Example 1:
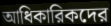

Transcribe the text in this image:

আধিকারিকদের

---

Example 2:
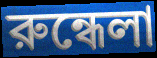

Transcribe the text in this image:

রুন্ধেলা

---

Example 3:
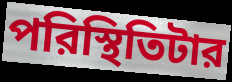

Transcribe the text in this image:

পরিস্থিতিটার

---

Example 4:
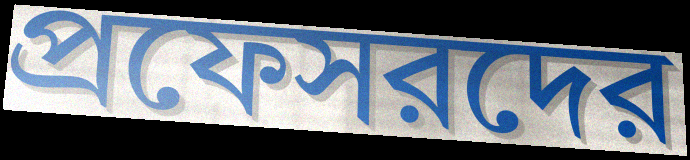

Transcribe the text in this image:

প্রফেসরদের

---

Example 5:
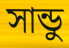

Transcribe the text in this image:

সান্ডু